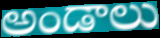
అండాలు